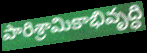
పారిశ్రామికాభివృద్ధి